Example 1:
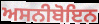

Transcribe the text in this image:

ਅਸਨੀਬੋਇਨ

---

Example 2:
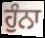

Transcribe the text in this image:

ਹੁੰਨਾ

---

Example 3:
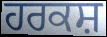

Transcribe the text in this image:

ਹਰਕਸ਼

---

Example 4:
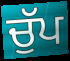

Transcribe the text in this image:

ਚੁੱਪ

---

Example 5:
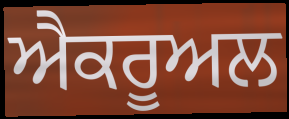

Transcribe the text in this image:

ਐਕਰੂਅਲ